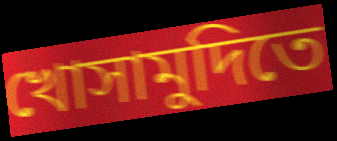
খোসামুদিতে